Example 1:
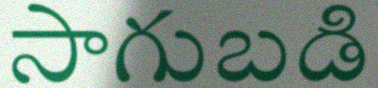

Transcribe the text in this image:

సాగుబడి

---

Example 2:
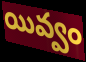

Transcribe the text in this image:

యివ్వం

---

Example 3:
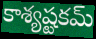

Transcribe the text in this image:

కాశ్యష్టకమ్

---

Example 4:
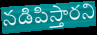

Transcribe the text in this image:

నడిపిస్తారని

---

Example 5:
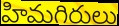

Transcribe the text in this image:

హిమగిరులు